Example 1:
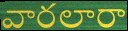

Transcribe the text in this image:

వారలారా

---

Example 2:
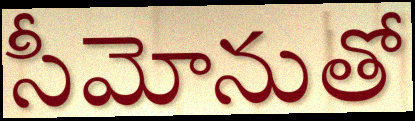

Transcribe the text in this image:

సీమోనుతో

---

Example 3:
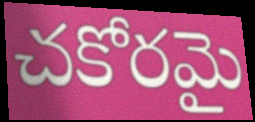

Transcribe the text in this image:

చకోరమై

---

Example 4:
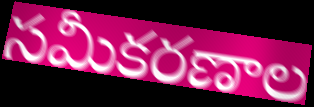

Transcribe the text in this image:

సమీకరణాల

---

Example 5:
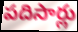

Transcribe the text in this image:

పదిసార్లు